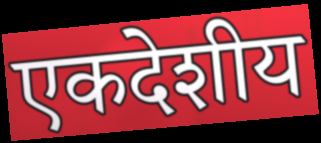
एकदेशीय